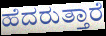
ಹೆದರುತ್ತಾರೆ